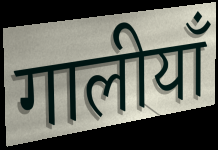
गालीयाँ